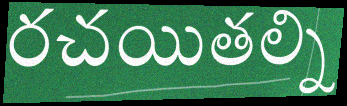
రచయితల్ని